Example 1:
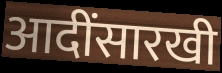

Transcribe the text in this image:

आदींसारखी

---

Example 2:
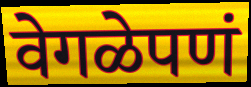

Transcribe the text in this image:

वेगळेपणं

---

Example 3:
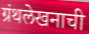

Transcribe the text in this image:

ग्रंथलेखनाची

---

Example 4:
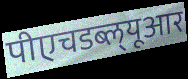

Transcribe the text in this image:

पीएचडब्ल्यूआर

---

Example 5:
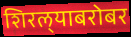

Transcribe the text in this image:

शिरल्याबरोबर